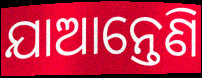
ଯାଆନ୍ତେଣି